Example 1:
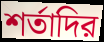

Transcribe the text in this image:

শর্তাদির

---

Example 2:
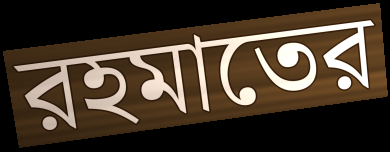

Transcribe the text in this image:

রহমাতের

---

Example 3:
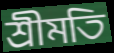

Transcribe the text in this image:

শ্রীমতি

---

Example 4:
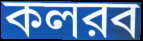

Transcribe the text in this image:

কলরব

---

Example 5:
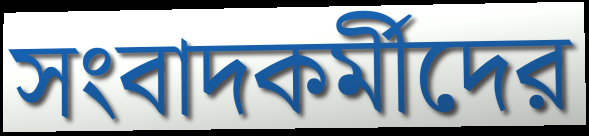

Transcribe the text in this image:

সংবাদকর্মীদের